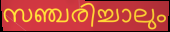
സഞ്ചരിച്ചാലും